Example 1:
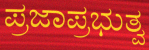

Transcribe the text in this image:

ಪ್ರಜಾಪ್ರಭುತ್ವ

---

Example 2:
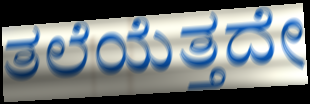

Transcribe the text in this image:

ತಲೆಯೆತ್ತದೇ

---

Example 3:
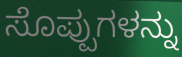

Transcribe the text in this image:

ಸೊಪ್ಪುಗಳನ್ನು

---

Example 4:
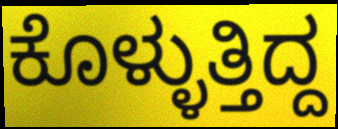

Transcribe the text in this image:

ಕೊಳ್ಳುತ್ತಿದ್ದ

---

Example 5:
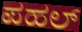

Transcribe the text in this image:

ಪಹಲ್